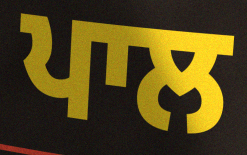
ਪਾਲ